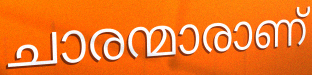
ചാരന്മാരാണ്